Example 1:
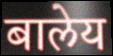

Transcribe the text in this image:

बालेय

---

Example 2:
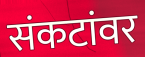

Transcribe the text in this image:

संकटांवर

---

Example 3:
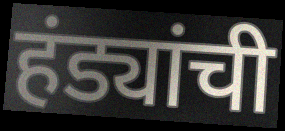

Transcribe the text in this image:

हंड्यांची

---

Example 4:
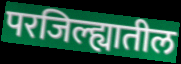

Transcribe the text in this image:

परजिल्ह्यातील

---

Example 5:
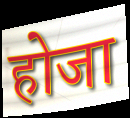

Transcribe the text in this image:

होजा